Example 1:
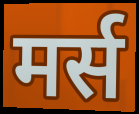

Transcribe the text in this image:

मर्स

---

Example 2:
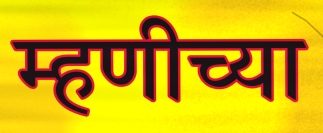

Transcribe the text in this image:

म्हणीच्या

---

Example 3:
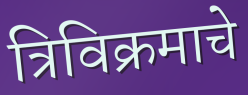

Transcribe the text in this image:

त्रिविक्रमाचे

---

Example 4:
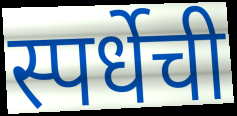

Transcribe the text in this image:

स्पर्धेची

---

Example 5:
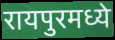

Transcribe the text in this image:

रायपुरमध्ये